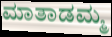
ಮಾತಾಡಮ್ಮ